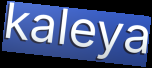
kaleya